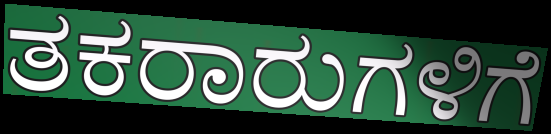
ತಕರಾರುಗಳಿಗೆ